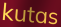
kutas